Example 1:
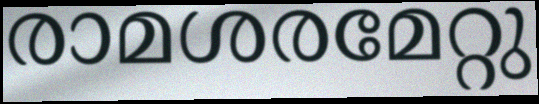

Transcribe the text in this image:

രാമശരമേറ്റു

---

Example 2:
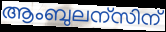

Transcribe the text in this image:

ആംബുലന്സിന്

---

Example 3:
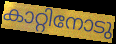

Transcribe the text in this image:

കാറ്റിനോടു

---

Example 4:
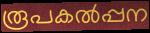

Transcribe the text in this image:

രൂപകൽപ്പന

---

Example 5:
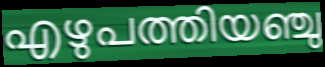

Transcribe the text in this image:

എഴുപത്തിയഞ്ചു